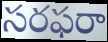
సరఫరా